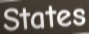
States